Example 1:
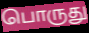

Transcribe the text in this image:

பொருது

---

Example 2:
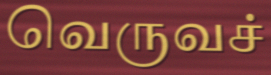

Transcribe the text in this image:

வெருவச்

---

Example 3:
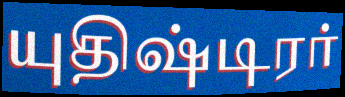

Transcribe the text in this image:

யுதிஷ்டிரர்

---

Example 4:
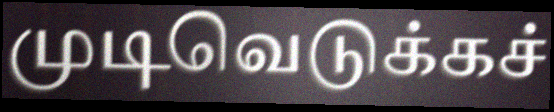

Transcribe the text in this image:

முடிவெடுக்கச்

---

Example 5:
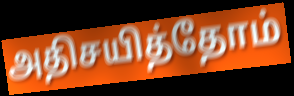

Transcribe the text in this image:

அதிசயித்தோம்